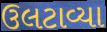
ઉલટાવ્યા